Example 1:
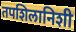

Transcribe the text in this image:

तपशिलानिशी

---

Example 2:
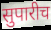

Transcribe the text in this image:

सुपारीच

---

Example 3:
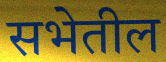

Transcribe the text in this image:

सभेतील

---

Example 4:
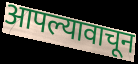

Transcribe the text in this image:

आपल्यावाचून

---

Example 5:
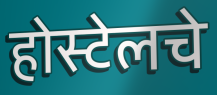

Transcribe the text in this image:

होस्टेलचे